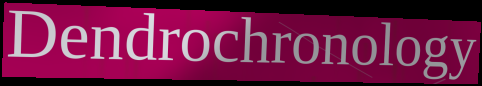
Dendrochronology